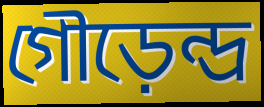
গৌড়েন্দ্র